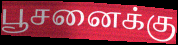
பூசனைக்கு